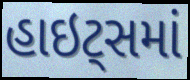
હાઇટ્સમાં